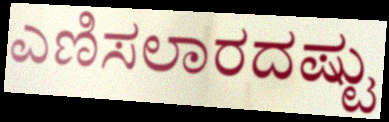
ಎಣಿಸಲಾರದಷ್ಟು